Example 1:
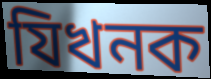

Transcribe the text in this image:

যিখনক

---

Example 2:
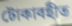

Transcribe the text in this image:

টোকাবহীত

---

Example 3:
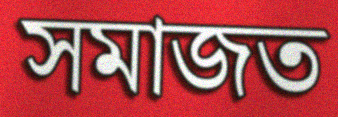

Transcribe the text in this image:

সমাজত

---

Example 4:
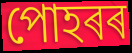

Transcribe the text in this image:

পোহৰৰ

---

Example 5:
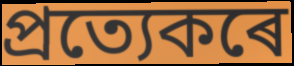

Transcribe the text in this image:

প্ৰত্যেকৰে